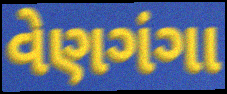
વેણગંગા